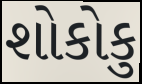
શોકોકુ